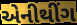
એનીથીંગ